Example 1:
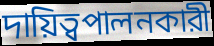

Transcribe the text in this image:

দায়িত্বপালনকারী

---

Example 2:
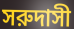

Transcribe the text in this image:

সরুদাসী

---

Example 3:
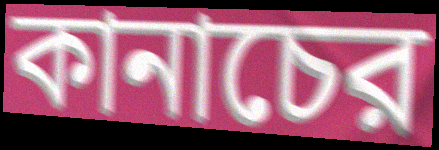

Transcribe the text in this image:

কানাচের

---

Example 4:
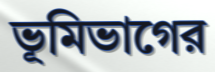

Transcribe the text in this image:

ভূমিভাগের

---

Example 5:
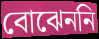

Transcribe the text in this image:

বোঝেননি